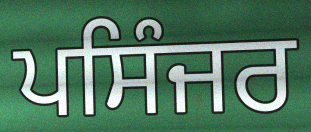
ਪਸਿੰਜਰ